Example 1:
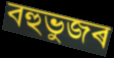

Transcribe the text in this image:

বহুভুজৰ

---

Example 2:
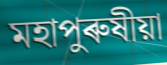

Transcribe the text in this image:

মহাপুৰুষীয়া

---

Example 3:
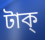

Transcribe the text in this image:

টাক্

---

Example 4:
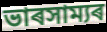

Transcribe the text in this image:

ভাৰসাম্যৰ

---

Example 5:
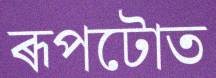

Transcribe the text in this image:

ৰূপটোত